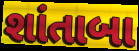
શાંતાબા